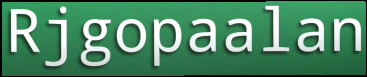
Rjgopaalan